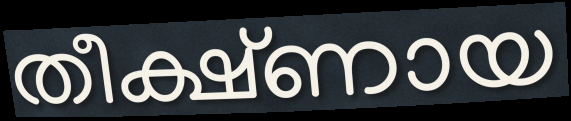
തീക്ഷ്ണായ